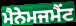
ਮੈਨੇਮਜਮੈਂਟ